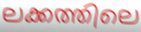
ലക്കത്തിലെ